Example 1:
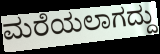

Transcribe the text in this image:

ಮರೆಯಲಾಗದ್ದು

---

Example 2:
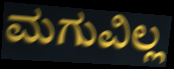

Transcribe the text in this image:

ಮಗುವಿಲ್ಲ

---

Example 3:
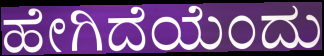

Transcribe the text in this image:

ಹೇಗಿದೆಯೆಂದು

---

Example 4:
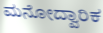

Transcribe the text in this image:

ಮನೋದ್ವಾರಿಕ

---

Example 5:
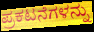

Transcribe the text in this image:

ಪ್ರಕಟನೆಗಳನ್ನು